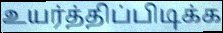
உயர்த்திப்பிடிக்க